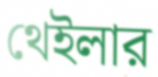
থেইলার